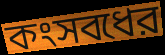
কংসবধের